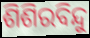
ଶିଶିରବିନ୍ଦୁ